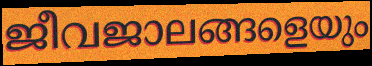
ജീവജാലങ്ങളെയും